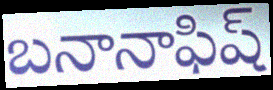
బనానాఫిష్